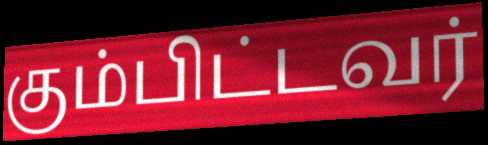
கும்பிட்டவர்